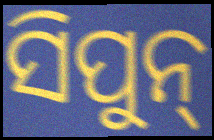
ସିପୁନ୍